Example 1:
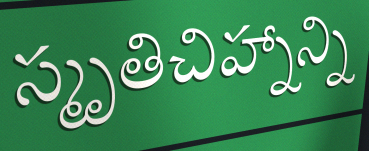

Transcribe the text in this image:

స్మృతిచిహ్నాన్ని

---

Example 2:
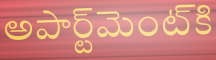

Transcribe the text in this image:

అపార్ట్‌మెంట్‌కి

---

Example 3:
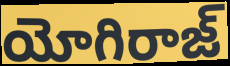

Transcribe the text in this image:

యోగిరాజ్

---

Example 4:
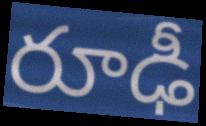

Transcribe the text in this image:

రూఢీ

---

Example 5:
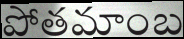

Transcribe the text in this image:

పోతమాంబ